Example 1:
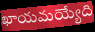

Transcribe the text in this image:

ఖాయమయ్యేది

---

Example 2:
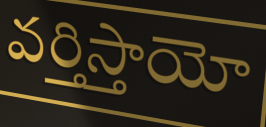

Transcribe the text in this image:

వర్తిస్తాయో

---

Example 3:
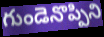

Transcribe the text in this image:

గుండెనొప్పిని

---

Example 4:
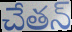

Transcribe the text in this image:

చేతన్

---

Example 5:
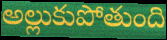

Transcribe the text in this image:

అల్లుకుపోతుంది